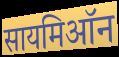
सायमिऑन